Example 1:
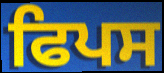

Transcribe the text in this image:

ਫਿਪਸ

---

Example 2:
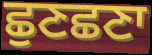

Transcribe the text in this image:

ਛੁਣਛਣਾ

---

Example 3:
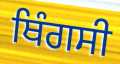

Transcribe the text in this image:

ਥਿੰਗਸੀ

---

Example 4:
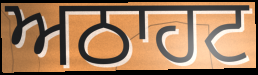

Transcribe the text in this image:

ਅਠਾਹਟ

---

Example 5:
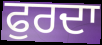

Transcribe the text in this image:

ਫੁਰਦਾ